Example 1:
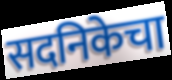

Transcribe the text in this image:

सदनिकेचा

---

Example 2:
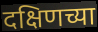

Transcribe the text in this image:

दक्षिणच्या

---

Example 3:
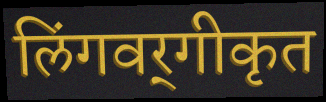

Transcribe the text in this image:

लिंगवर्गीकृत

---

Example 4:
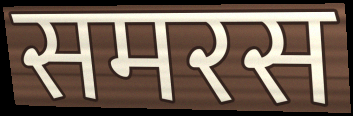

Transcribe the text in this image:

समरस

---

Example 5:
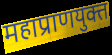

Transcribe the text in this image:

महाप्राणयुक्त